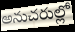
అనుచరుల్లో